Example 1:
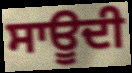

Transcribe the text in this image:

ਸਾਊਦੀ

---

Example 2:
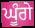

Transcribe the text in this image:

ਘੂੰਗੇ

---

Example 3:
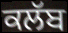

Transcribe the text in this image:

ਕਲੱਬ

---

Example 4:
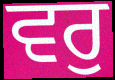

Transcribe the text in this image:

ਵਰੁ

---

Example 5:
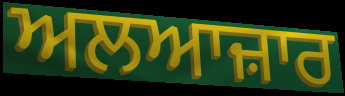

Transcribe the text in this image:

ਅਲਆਜ਼ਾਰ